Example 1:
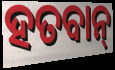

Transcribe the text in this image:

ହତବାନ୍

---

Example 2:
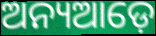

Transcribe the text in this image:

ଅନ୍ୟଆଡ଼େ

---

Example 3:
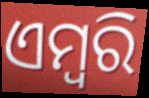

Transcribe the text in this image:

ଏମ୍ବରି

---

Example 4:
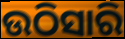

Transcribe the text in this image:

ଉଠିସାରି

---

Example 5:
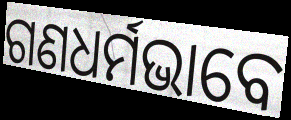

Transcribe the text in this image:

ଗଣଧର୍ମଭାବେ